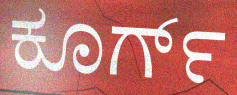
ಕೂರ್ಗ್